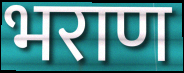
भराण